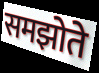
समझोते